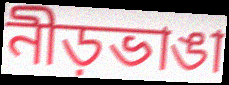
নীড়ভাঙা